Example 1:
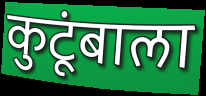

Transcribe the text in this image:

कुटूंबाला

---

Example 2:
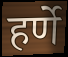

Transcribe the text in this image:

हर्णे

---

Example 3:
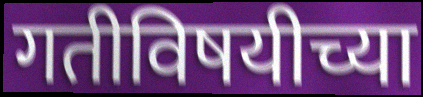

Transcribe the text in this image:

गतीविषयीच्या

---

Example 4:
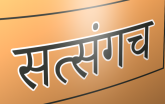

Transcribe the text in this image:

सत्संगच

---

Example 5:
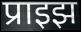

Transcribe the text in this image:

प्राइझ